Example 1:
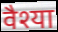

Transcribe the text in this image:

वैश्या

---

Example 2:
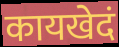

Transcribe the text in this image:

कायखेदं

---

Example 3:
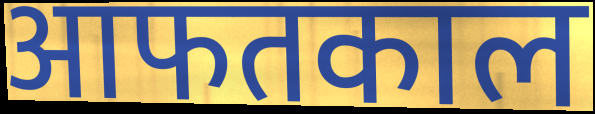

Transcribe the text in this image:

आफतकाल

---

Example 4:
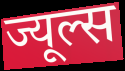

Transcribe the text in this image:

ज्यूल्स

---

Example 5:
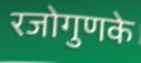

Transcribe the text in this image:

रजोगुणके